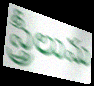
స్త్రీలును